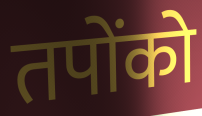
तपोंको